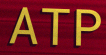
ATP